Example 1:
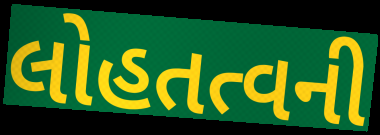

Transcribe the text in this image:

લોહતત્વની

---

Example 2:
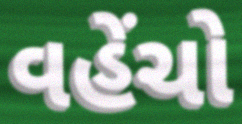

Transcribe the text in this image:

વહેંચો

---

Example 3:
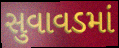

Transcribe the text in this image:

સુવાવડમાં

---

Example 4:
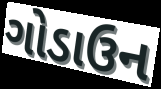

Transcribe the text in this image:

ગોડાઉન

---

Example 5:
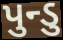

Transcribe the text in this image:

પુન્ડુ